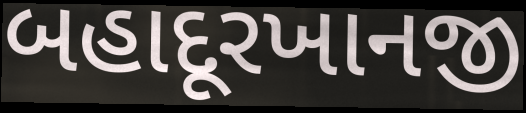
બહાદૂરખાનજી